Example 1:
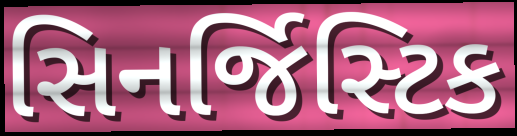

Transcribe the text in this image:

સિનર્જિસ્ટિક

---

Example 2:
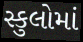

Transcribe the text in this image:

સ્કુલોમાં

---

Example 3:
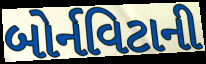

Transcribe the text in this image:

બોર્નવિટાની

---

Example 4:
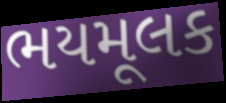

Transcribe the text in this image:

ભયમૂલક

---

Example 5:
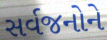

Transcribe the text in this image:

સર્વજનોને